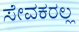
ಸೇವಕರಲ್ಲ